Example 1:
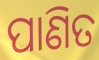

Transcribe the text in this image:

ପାଣିତ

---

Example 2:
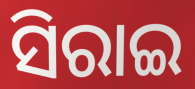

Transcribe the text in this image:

ସିରାଇ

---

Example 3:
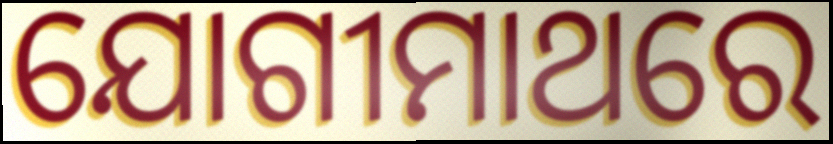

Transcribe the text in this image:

ଯୋଗୀମାଥରେ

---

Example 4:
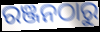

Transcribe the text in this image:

ରଞ୍ଜନଠାରୁ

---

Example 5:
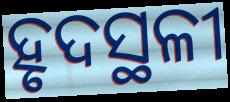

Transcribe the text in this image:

ହୃଦସ୍ଥଳୀ